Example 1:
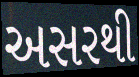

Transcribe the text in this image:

અસરથી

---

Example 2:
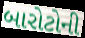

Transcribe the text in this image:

બારોટોની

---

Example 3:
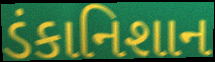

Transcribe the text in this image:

ડંકાનિશાન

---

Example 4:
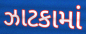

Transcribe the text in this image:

ઝાટકામાં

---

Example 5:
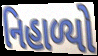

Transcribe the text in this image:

નિહાળ્યો